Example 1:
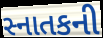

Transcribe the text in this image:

સ્નાતકની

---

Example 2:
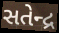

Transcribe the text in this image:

સતેન્દ્ર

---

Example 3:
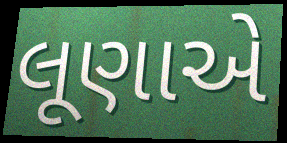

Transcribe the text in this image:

લૂણાએ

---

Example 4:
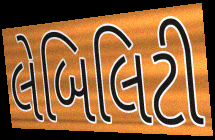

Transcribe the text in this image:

લેબિલિટી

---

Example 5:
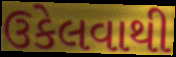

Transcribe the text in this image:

ઉકેલવાથી